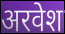
अरवेश